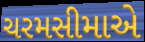
ચરમસીમાએ